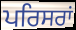
ਪਰਿਸਰਾਂ